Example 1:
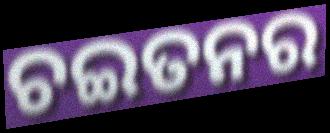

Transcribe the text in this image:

ଚଇତନର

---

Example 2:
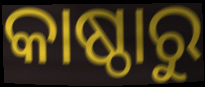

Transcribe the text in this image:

କାଷ୍ଠାରୁ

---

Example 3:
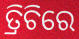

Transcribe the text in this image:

ତ୍ରିଚିରେ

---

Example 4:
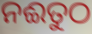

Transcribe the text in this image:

ନଈତୁଠ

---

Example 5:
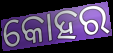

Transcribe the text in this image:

କୋହର